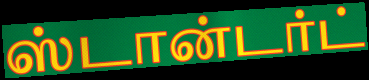
ஸ்டான்டர்ட்